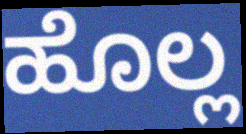
ಹೊಲ್ಲ